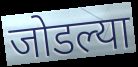
जोडल्या